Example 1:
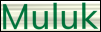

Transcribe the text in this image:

Muluk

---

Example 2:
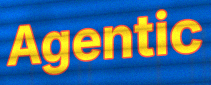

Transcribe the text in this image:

Agentic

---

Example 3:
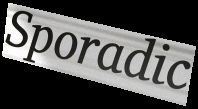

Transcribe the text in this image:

Sporadic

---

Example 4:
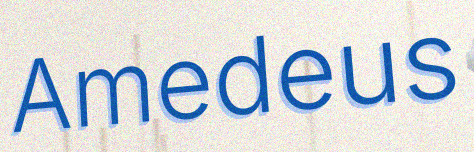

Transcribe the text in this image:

Amedeus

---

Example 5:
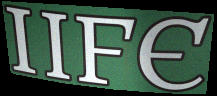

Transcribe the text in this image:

IIFE